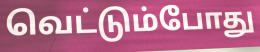
வெட்டும்போது